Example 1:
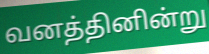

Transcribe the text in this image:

வனத்தினின்று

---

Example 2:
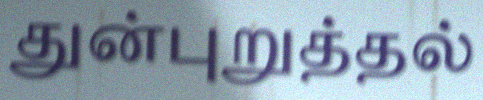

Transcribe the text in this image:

துன்புறுத்தல்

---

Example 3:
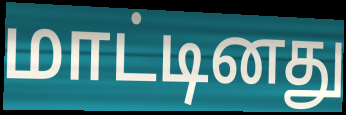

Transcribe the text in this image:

மாட்டினது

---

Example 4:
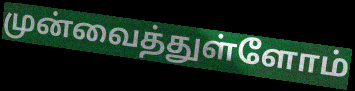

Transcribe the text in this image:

முன்வைத்துள்ளோம்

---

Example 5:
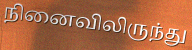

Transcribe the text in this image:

நினைவிலிருந்து